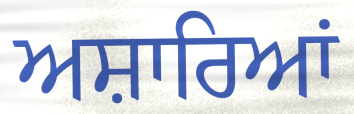
ਅਸ਼ਾਰਿਆਂ